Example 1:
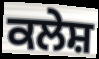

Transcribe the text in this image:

ਕਲੇਸ਼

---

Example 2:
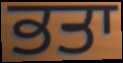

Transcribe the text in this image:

ਭਤਾ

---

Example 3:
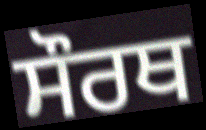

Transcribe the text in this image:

ਸੌਰਥ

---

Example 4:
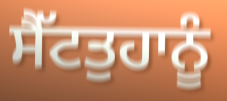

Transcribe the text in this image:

ਸੈੱਟਤੁਹਾਨੂੰ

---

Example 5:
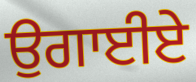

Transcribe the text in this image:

ਉਗਾਈਏ